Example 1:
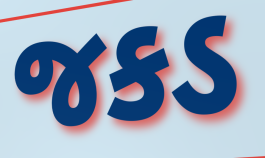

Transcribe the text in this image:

જકડ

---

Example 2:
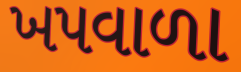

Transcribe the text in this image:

ખપવાળા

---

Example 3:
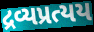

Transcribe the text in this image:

દ્રવ્યપ્રત્યય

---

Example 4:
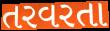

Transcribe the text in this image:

તરવરતા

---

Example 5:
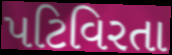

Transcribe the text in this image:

પટિવિરતા